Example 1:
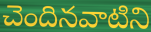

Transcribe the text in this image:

చెందినవాటిని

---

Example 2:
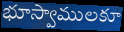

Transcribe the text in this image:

భూస్వాములకూ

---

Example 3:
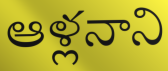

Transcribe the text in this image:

ఆళ్లనాని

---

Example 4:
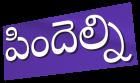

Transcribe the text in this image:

పిందెల్ని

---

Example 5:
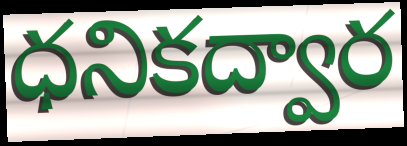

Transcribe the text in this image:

ధనికద్వార